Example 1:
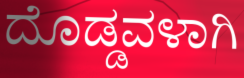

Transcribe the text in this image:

ದೊಡ್ಡವಳಾಗಿ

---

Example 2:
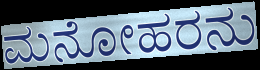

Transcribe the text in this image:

ಮನೋಹರನು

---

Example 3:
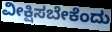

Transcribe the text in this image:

ವೀಕ್ಷಿಸಬೇಕೆಂದು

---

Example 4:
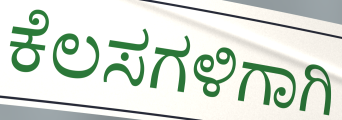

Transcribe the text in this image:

ಕೆಲಸಗಳಿಗಾಗಿ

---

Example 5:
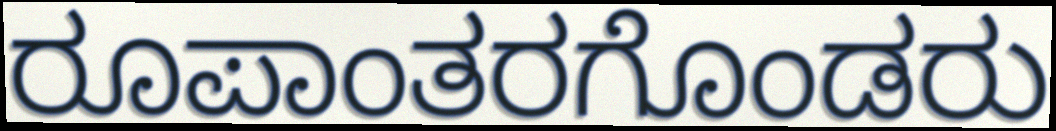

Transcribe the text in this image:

ರೂಪಾಂತರಗೊಂಡರು